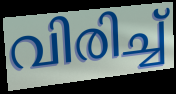
വിരിച്ച്